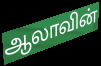
ஆலாவின்